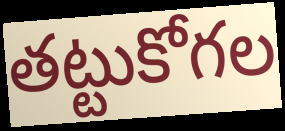
తట్టుకోగల